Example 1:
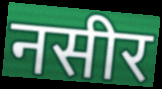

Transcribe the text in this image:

नसीर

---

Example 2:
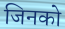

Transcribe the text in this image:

जिनको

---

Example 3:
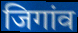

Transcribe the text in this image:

जिगांव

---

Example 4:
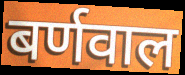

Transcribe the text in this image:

बर्णवाल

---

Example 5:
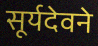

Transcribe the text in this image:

सूर्यदेवने